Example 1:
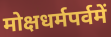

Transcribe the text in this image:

मोक्षधर्मपर्वमें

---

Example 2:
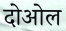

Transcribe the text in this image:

दोओल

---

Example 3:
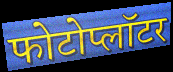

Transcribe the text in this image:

फोटोप्लॉटर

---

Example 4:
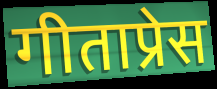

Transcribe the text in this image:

गीताप्रेस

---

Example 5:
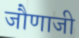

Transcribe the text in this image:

जौणाजी